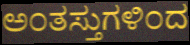
ಅಂತಸ್ತುಗಳಿಂದ